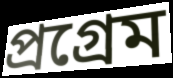
প্ৰগ্ৰেম